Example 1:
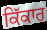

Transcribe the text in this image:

ਕਿੱਕਾਰ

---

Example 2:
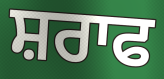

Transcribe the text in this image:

ਸ਼ਰਾਫ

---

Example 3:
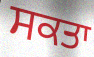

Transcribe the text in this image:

ਸਕਤਾ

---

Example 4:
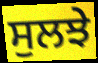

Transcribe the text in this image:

ਸੁਲਝੇ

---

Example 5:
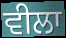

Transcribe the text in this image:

ਵੀਲਾ